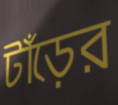
টাঁড়ের